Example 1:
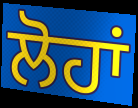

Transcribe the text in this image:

ਲੋਹਾਂ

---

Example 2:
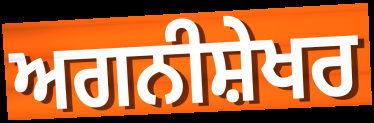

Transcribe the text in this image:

ਅਗਨੀਸ਼ੇਖਰ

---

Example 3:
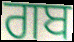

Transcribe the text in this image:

ਗਬ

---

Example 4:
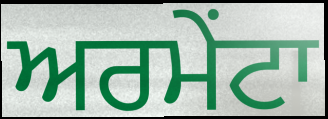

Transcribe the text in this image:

ਅਰਮੇਂਟਾ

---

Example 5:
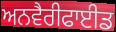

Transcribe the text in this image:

ਅਨਵੈਰੀਫਾਈਡ